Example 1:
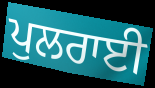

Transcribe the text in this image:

ਪੁਲਰਾਈ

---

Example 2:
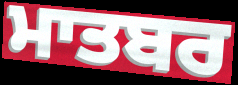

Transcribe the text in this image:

ਮਾਤਬਰ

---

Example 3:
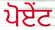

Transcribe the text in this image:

ਪੋਏਂਟ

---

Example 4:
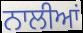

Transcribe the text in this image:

ਨਾਲੀਆਂ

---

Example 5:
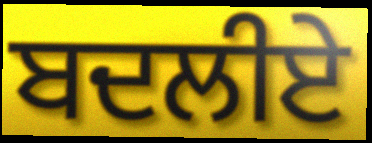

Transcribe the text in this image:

ਬਦਲੀਏ